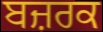
ਬਜ਼ਰਕ